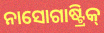
ନାସୋଗାଷ୍ଟ୍ରିକ୍